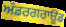
ਅੰਡਰਗਰਾਊਂਡ